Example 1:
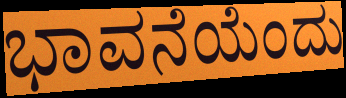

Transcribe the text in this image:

ಭಾವನೆಯೆಂದು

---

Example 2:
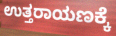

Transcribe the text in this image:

ಉತ್ತರಾಯಣಕ್ಕೆ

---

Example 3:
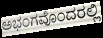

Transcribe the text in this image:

ಅಭಂಗವೊಂದರಲ್ಲಿ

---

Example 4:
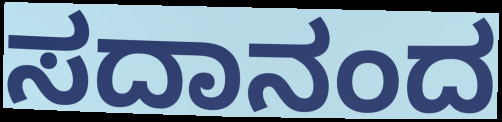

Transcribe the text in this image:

ಸದಾನಂದ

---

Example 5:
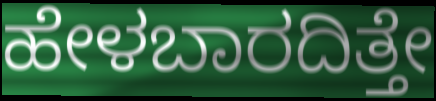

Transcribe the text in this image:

ಹೇಳಬಾರದಿತ್ತೇ